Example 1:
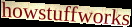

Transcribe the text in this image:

howstuffworks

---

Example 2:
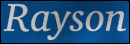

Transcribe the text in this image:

Rayson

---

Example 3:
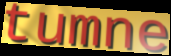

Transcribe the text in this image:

tumne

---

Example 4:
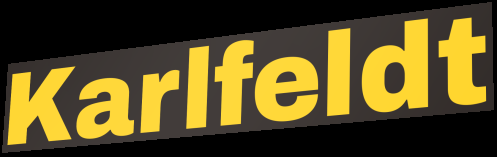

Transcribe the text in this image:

Karlfeldt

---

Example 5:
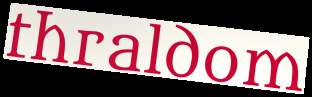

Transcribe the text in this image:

thraldom